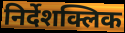
निर्देशक्लिक